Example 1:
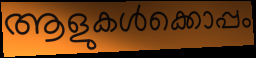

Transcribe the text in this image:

ആളുകൾക്കൊപ്പം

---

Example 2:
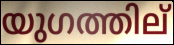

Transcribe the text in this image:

യുഗത്തില്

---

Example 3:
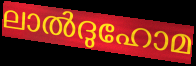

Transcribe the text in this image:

ലാൽദുഹോമ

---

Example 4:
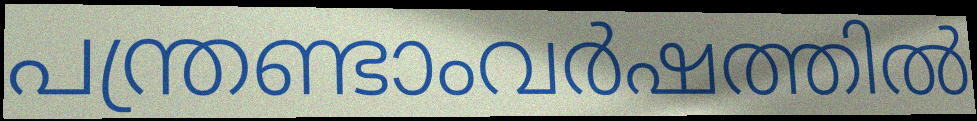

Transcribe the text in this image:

പന്ത്രണ്ടാംവർഷത്തിൽ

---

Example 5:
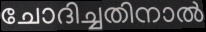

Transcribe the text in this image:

ചോദിച്ചതിനാൽ